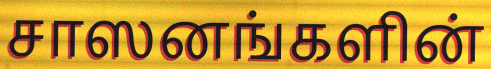
சாஸனங்களின்